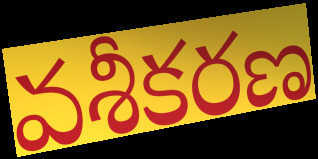
వశీకరణ